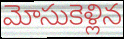
మోసుకెళ్లిన